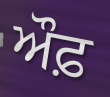
ਔਫ਼